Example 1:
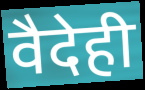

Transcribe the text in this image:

वैदेही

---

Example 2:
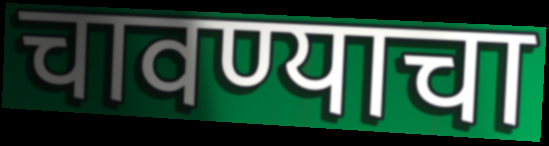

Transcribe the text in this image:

चावण्याचा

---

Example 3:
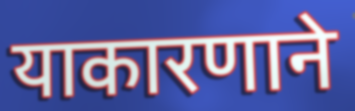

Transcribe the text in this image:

याकारणाने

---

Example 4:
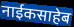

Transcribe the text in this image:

नाईकसाहेब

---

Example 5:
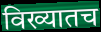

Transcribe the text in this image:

विख्यातच